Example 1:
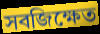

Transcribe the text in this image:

সবজিক্ষেত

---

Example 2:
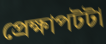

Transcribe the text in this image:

প্রেক্ষাপটটা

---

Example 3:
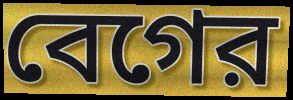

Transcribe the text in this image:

বেগের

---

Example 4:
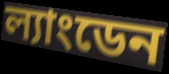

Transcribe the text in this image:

ল্যাংডেন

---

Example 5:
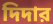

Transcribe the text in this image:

দিদার